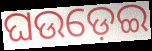
ଘଉଡ଼େଇ